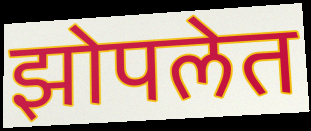
झोपलेत